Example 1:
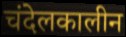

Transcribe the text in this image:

चंदेलकालीन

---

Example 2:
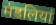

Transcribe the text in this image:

मंडलियां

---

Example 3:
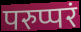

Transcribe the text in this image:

परुप्परं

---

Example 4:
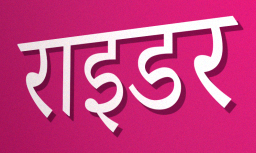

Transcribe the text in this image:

राइडर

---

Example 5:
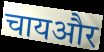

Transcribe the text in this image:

चायऔर